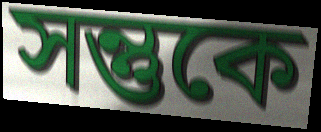
সন্তুকে